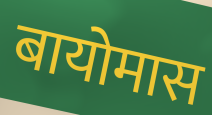
बायोमास